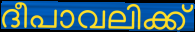
ദീപാവലിക്ക്